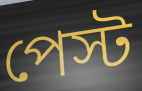
পেস্ট